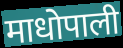
माधोपाली